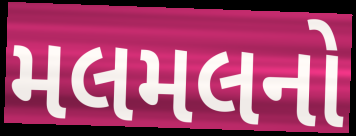
મલમલનો